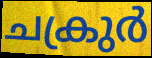
ചക്രുർ